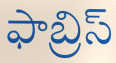
ఫాబ్రిస్